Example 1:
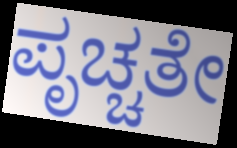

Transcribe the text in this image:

ಪೃಚ್ಚತೇ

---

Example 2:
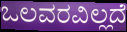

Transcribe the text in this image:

ಒಲವರವಿಲ್ಲದೆ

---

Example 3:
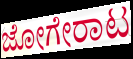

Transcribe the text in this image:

ಜೋಗೇರಾಟ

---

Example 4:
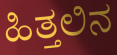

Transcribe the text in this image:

ಹಿತ್ತಲಿನ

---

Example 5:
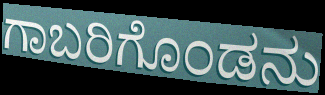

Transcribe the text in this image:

ಗಾಬರಿಗೊಂಡನು